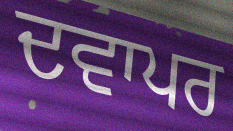
ਦਵਾਪਰ